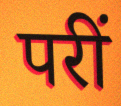
परीं